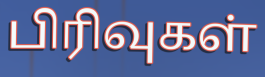
பிரிவுகள்